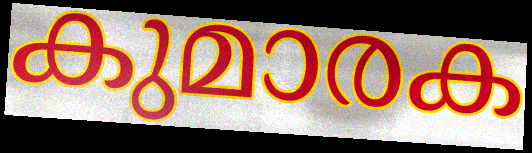
കുമാരക